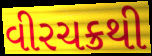
વીરચક્રથી